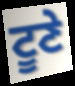
ਟੂਣੇ